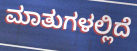
ಮಾತುಗಳಲ್ಲಿದೆ